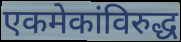
एकमेकांविरुद्ध